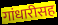
गांधारीसह